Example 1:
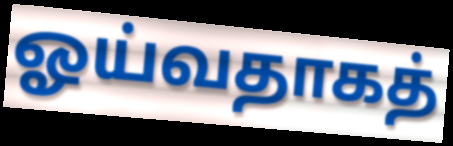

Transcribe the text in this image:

ஓய்வதாகத்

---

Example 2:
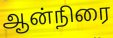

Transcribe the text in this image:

ஆன்நிரை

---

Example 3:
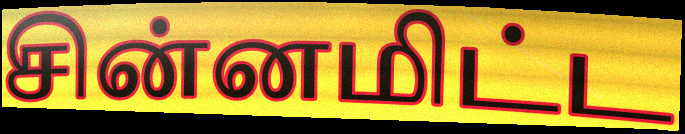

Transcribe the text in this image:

சின்னமிட்ட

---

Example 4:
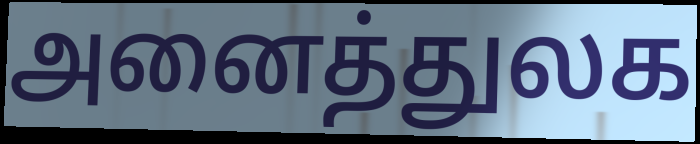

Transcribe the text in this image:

அனைத்துலக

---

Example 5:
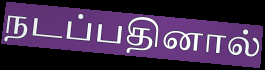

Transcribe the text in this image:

நடப்பதினால்